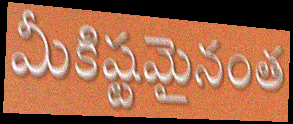
మీకిష్టమైనంత